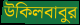
উকিলবাবুর